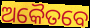
ଅକୈତବେ